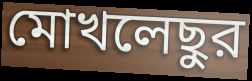
মোখলেছুর